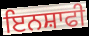
ਇਨਸ਼ਾਫੀ